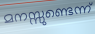
മനസ്സുണ്ടെന്ന്